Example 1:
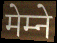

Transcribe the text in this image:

मेम्ने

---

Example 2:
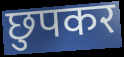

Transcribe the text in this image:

छुपकर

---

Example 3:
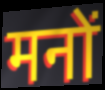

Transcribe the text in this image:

मनों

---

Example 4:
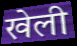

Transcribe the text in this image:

खेली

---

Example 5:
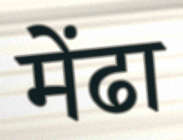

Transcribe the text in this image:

मेंढा